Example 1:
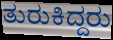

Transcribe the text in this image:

ತುರುಕಿದ್ದರು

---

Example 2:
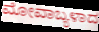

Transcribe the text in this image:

ಮೋವಾಬ್ಯಳಾದ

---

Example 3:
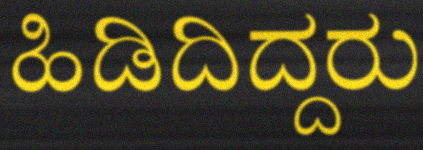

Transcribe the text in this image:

ಹಿಡಿದಿದ್ದರು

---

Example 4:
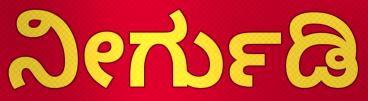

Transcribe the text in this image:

ನೀರ್ಗುಡಿ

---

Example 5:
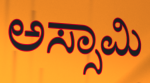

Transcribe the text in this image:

ಅಸ್ಸಾಮಿ